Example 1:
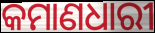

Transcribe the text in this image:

କମାଣଧାରୀ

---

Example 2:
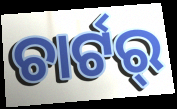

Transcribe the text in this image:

ଚାର୍ଟର୍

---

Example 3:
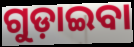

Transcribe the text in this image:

ଗୁଡ଼ାଇବା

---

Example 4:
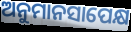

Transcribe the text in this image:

ଅନୁମାନସାପେକ୍ଷ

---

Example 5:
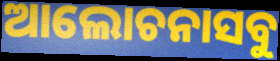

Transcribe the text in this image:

ଆଲୋଚନାସବୁ